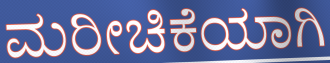
ಮರೀಚಿಕೆಯಾಗಿ